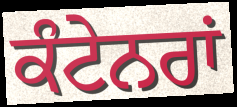
ਕੰਟੇਨਰਾਂ